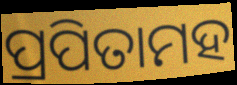
ପ୍ରପିତାମହ